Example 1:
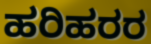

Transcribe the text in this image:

ಹರಿಹರರ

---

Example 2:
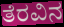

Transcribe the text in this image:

ತೆರವಿನ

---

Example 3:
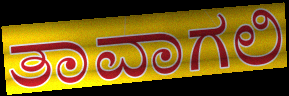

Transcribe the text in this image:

ತಾವಾಗಲಿ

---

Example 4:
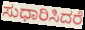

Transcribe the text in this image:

ಸುಧಾರಿಸಿದರೆ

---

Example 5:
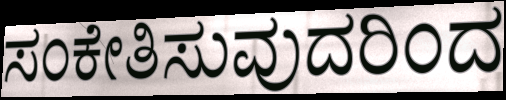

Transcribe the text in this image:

ಸಂಕೇತಿಸುವುದರಿಂದ